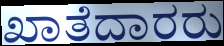
ಖಾತೆದಾರರು